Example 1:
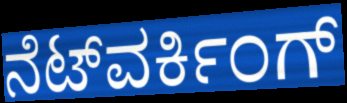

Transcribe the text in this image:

ನೆಟ್‌ವರ್ಕಿಂಗ್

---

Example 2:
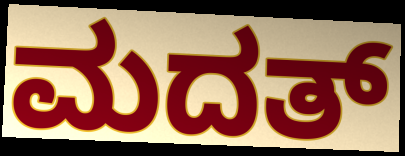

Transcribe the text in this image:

ಮದತ್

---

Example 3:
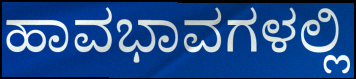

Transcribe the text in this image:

ಹಾವಭಾವಗಳಲ್ಲಿ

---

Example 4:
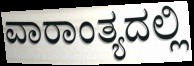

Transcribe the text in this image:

ವಾರಾಂತ್ಯದಲ್ಲಿ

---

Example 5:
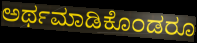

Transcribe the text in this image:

ಅರ್ಥಮಾಡಿಕೊಂಡರೂ